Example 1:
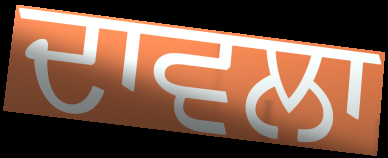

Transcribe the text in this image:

ਦਾਵਲਾ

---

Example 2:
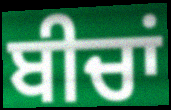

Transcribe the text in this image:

ਬੀਚਾਂ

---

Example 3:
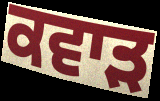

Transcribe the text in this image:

ਕਵਾੜ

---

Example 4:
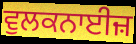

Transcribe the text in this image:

ਵੁਲਕਨਾਈਜ਼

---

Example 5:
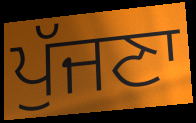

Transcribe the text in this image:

ਪੁੱਜਣਾ